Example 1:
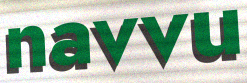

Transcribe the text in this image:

navvu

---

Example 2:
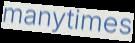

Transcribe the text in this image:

manytimes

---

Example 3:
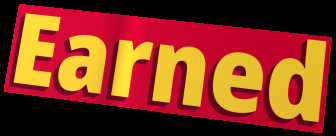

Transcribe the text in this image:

Earned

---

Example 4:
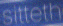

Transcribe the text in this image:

sitteth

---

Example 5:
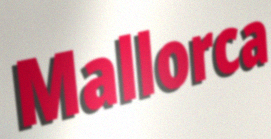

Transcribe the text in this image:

Mallorca